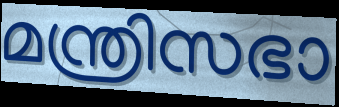
മന്ത്രിസഭാ